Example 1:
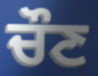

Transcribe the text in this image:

ਚੌਣ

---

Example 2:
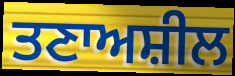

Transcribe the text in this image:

ਤਣਾਅਸ਼ੀਲ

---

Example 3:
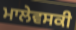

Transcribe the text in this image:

ਮਾਲੇਵਸਕੀ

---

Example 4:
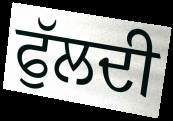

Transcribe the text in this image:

ਫੁੱਲਦੀ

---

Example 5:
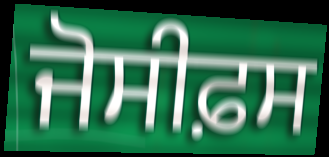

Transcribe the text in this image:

ਜੋਸੀਫ਼ਸ